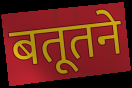
बतूतने